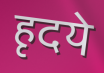
हृदये